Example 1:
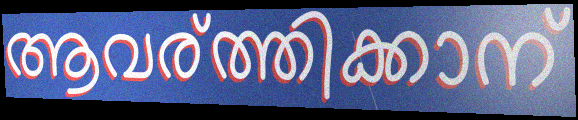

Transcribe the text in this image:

ആവര്ത്തിക്കാന്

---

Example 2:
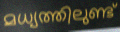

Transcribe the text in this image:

മധ്യത്തിലുണ്ട്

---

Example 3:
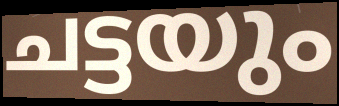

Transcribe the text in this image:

ചട്ടയും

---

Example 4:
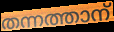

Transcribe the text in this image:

തന്നത്താന്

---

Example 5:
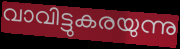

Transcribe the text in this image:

വാവിട്ടുകരയുന്നു